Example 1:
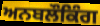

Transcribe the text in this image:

ਅਨਬਲੌਕਿੰਗ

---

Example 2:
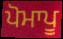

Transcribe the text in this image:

ਪੋਮਾਪੂ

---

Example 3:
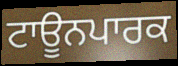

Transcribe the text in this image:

ਟਾਊਨਪਾਰਕ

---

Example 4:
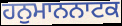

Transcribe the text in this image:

ਹਨੁਮਾਨਨਾਟਕ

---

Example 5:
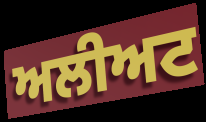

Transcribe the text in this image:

ਅਲੀਅਟ